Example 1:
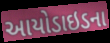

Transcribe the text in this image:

આયોડાઇડના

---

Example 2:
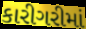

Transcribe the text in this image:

કારીગરીમાં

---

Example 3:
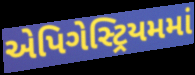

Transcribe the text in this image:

એપિગેસ્ટ્રિયમમાં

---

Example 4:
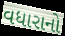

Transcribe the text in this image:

વધારાનો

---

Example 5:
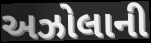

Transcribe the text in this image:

અઝોલાની